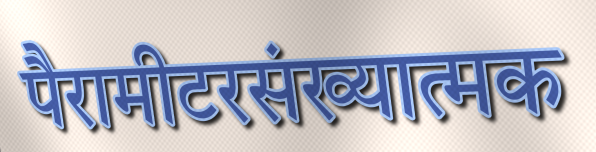
पैरामीटरसंख्यात्मक